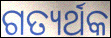
ଗତ୍ୟର୍ଥକ